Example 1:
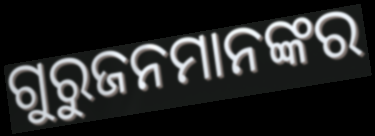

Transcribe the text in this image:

ଗୁରୁଜନମାନଙ୍କର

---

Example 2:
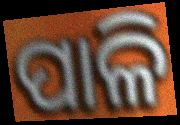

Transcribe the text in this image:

ପାଳି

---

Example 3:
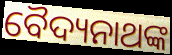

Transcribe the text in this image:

ବୈଦ୍ୟନାଥଙ୍କ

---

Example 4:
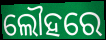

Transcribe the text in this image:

ଲୌହରେ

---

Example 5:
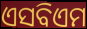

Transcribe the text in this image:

ଏସବିଏମ